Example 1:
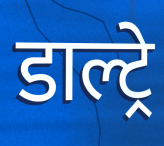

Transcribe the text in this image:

डाल्ट्रे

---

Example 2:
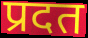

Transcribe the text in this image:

प्रदत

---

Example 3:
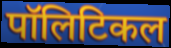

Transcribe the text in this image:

पॉलिटिकल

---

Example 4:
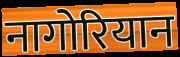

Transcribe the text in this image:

नागोरियान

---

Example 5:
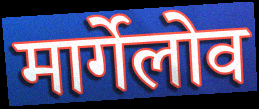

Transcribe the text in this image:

मार्गेलोव